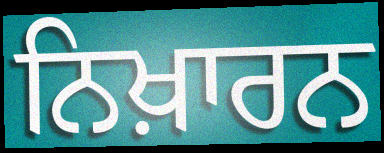
ਨਿਖ਼ਾਰਨ